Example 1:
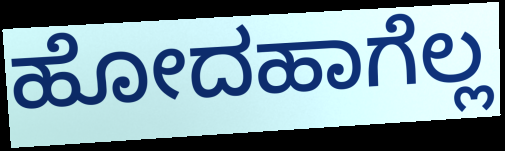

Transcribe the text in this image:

ಹೋದಹಾಗೆಲ್ಲ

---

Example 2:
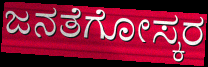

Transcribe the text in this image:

ಜನತೆಗೋಸ್ಕರ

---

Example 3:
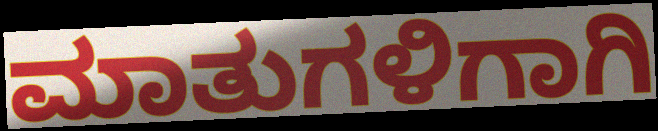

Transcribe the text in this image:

ಮಾತುಗಳಿಗಾಗಿ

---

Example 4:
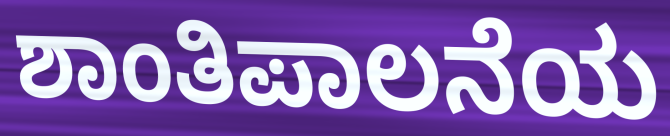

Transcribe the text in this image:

ಶಾಂತಿಪಾಲನೆಯ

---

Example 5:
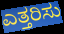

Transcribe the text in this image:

ಎತ್ತರಿಸು